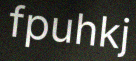
fpuhkj